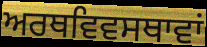
ਅਰਥਵਿਵਸਥਾਵਾਂ